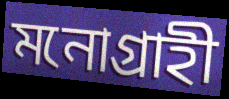
মনোগ্ৰাহী